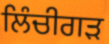
ਲਿੰਚੀਗੜ